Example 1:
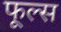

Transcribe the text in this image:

फूल्स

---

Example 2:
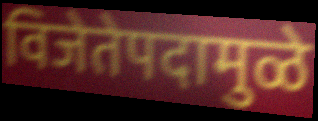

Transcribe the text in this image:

विजेतेपदामुळे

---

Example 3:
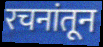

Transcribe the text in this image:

रचनांतून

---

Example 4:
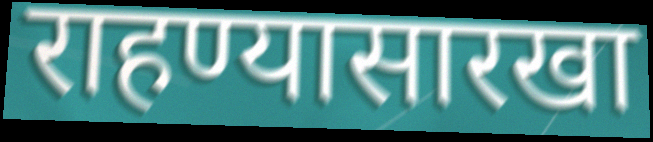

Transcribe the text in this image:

राहण्यासारखा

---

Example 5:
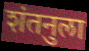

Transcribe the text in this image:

शंतनुला